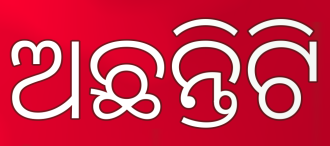
ଅଛନ୍ତିଟି